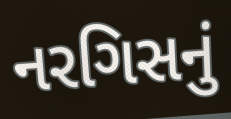
નરગિસનું